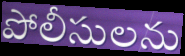
పోలీసులను